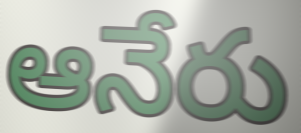
ఆనేరు